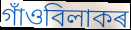
গাঁওবিলাকৰ